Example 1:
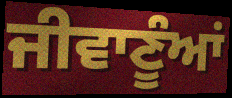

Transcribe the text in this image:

ਜੀਵਾਣੂੰਆਂ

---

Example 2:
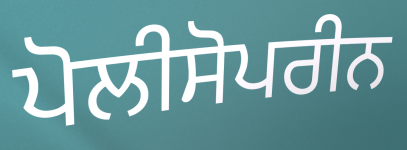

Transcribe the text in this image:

ਪੋਲੀਸੋਪਰੀਨ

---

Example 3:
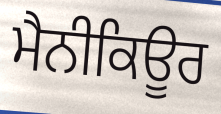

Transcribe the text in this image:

ਮੈਨੀਕਿਊਰ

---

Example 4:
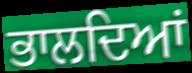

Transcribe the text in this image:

ਭਾਲਦਿਆਂ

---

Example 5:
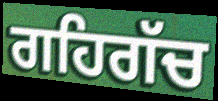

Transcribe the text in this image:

ਗਹਿਗੱਚ